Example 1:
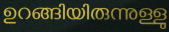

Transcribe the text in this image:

ഉറങ്ങിയിരുന്നുള്ളു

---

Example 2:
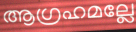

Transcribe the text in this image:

ആഗ്രഹമല്ലേ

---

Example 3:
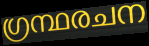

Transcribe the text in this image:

ഗ്രന്ഥരചന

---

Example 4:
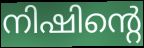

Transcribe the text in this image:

നിഷിന്റെ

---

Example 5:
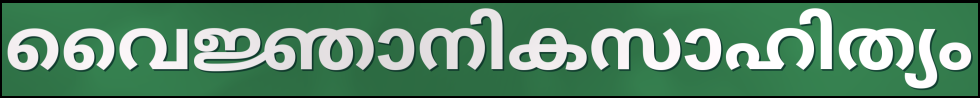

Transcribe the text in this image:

വൈജ്ഞാനികസാഹിത്യം